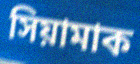
সিয়ামাক